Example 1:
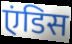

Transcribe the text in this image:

एंडिस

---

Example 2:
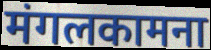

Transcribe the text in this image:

मंगलकामना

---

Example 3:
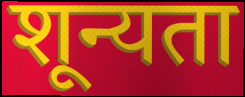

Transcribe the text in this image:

शून्‍यता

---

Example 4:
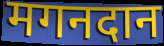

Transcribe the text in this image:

मगनदान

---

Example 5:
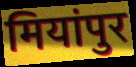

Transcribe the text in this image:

मियांपुर